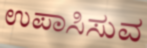
ಉಪಾಸಿಸುವ